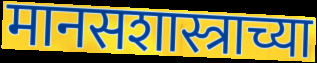
मानसशास्त्राच्या